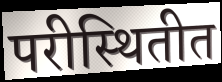
परीस्थितीत